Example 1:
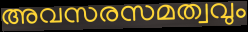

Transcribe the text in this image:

അവസരസമത്വവും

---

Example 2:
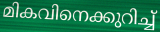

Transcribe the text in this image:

മികവിനെക്കുറിച്ച്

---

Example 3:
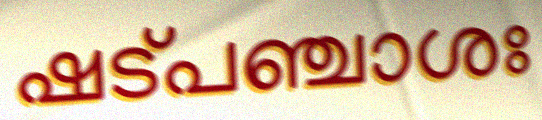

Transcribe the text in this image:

ഷട്പഞ്ചാശഃ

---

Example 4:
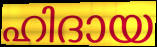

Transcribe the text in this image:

ഹിദായ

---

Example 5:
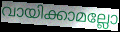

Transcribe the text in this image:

വായിക്കാമല്ലോ